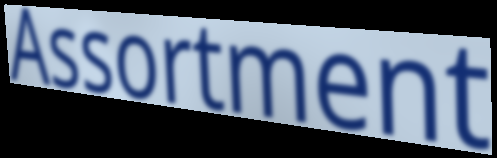
Assortment